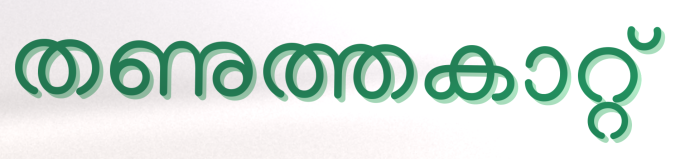
തണുത്തകാറ്റ്